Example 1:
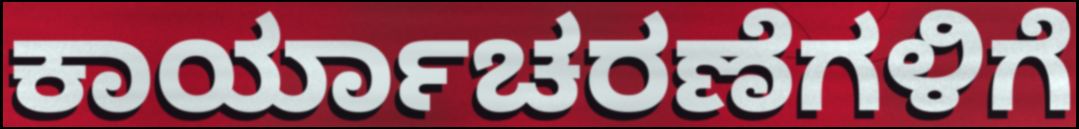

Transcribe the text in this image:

ಕಾರ್ಯಾಚರಣೆಗಳಿಗೆ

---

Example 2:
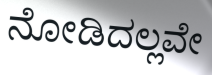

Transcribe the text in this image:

ನೋಡಿದಲ್ಲವೇ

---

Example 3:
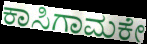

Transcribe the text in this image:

ಕಾಸಿಗಾಮಕೇ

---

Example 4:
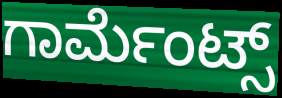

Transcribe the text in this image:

ಗಾರ್ಮೆಂಟ್ಸ್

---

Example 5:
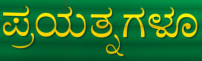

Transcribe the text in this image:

ಪ್ರಯತ್ನಗಳೂ